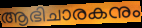
ആഭിചാരകനും